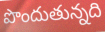
పొందుతున్నది